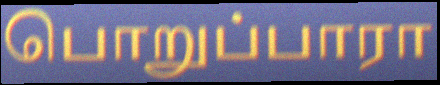
பொறுப்பாரா